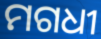
ମଗଧୀ